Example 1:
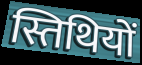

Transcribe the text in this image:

स्तिथियों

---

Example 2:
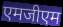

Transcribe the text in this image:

एमजीएम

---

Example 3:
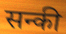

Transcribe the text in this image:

सन्की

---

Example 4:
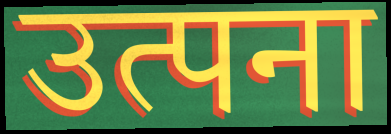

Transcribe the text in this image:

उत्पना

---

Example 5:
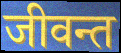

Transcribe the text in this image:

जीवन्त